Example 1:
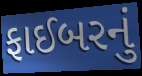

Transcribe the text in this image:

ફાઈબરનું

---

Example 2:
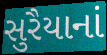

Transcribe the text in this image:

સુરૈયાનાં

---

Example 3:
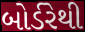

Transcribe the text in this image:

બોર્ડરેથી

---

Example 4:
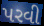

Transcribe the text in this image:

પરવી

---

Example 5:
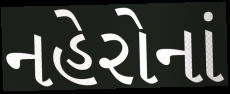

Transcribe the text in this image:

નહેરોનાં